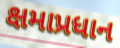
ક્ષમાપ્રધાન